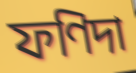
ফণিদা